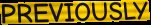
PREVIOUSLY